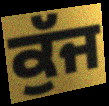
ਕੁੱਜ